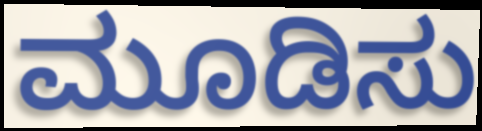
ಮೂಡಿಸು